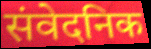
संवेदनिक